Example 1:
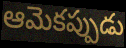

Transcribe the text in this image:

ఆమెకప్పుడు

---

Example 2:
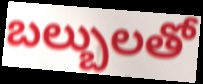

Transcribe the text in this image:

బల్బులతో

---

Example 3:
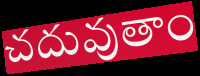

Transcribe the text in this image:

చదువుతాం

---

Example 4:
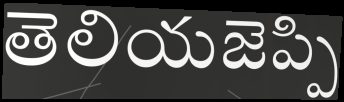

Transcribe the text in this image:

తెలియజెప్పి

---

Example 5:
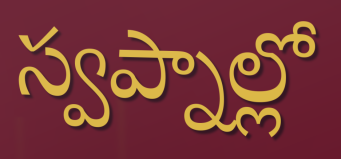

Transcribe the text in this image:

స్వప్నాల్లో